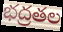
భద్రతల